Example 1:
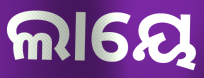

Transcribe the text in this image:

ଲାୟେ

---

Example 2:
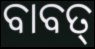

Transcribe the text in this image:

ବାବତ୍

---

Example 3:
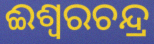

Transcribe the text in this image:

ଈଶ୍ୱରଚନ୍ଦ୍ର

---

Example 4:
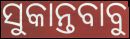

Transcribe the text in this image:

ସୁକାନ୍ତବାବୁ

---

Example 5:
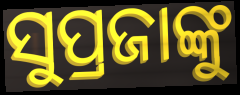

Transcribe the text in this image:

ସୁପ୍ରଜାଙ୍କୁ